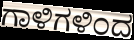
ಗಾಳಿಗಳಿಂದ